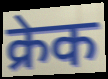
क्रेक